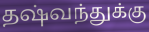
தஷ்வந்துக்கு